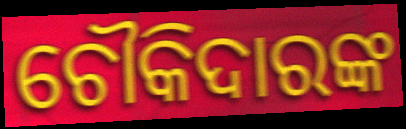
ଚୌକିଦାରଙ୍କ